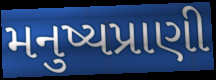
મનુષ્યપ્રાણી